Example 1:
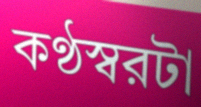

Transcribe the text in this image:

কণ্ঠস্বরটা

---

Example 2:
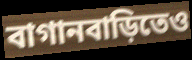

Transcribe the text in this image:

বাগানবাড়িতেও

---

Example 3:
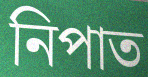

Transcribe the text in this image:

নিপাত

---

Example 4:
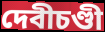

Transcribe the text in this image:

দেবীচণ্ডী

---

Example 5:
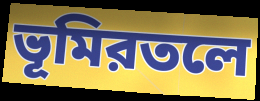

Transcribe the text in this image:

ভূমিরতলে